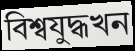
বিশ্বযুদ্ধখন